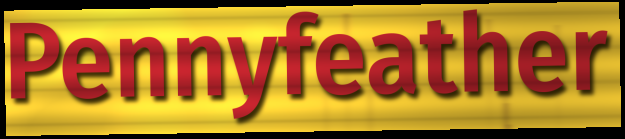
Pennyfeather